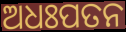
ଅଧଃପତନ